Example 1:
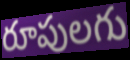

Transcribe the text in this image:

రూపులగు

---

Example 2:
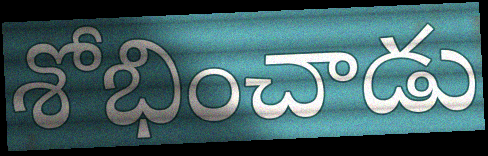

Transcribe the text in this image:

శోభించాడు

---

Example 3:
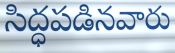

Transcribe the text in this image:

సిద్ధపడినవారు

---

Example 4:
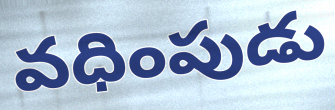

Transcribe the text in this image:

వధింపుడు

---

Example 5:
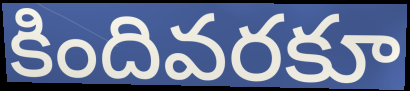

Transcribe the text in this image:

కిందివరకూ